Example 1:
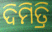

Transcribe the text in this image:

ଦିମିତ୍ରି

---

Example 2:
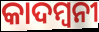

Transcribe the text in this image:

କାଦମ୍ୱନୀ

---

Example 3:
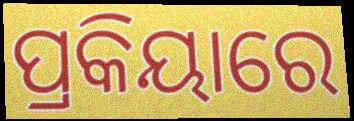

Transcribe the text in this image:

ପ୍ରକିୟାରେ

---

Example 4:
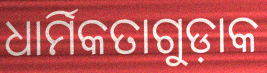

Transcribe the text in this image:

ଧାର୍ମିକତାଗୁଡ଼ାକ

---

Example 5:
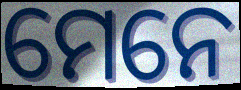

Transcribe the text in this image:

ମେନେ